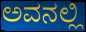
ಅವನಲ್ಲಿ